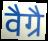
वैग्रै